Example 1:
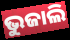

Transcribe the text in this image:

ଭୁଜାଲି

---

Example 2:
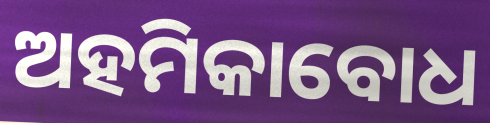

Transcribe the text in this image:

ଅହମିକାବୋଧ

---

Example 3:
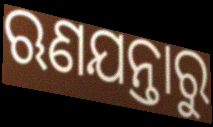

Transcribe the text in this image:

ଋଣଯନ୍ତାରୁ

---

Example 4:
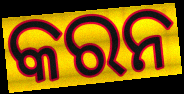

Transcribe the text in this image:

କରନ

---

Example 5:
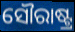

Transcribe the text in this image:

ସୌରାଷ୍ଟ୍ର